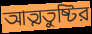
আত্মতুষ্টির